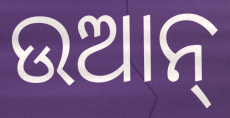
ଉଆନ୍